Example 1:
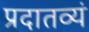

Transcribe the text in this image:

प्रदातव्यं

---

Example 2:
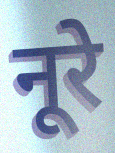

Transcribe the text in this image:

नूरे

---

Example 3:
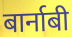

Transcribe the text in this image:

बार्नाबी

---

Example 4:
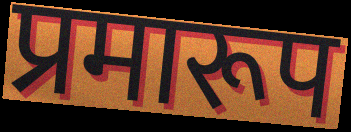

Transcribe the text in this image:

प्रमारूप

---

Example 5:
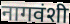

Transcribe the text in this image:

नागवंशी